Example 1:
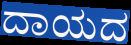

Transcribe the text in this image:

ದಾಯದ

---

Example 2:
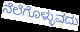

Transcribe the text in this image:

ನೆಲೆಗೊಳ್ಳುವದು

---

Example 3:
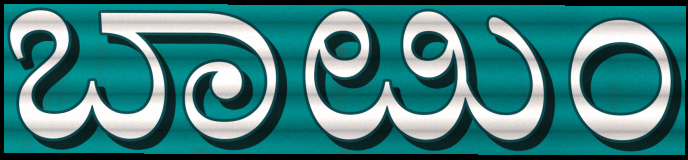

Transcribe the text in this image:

ಬಾೞುಂ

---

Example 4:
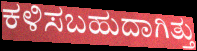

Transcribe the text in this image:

ಕಳಿಸಬಹುದಾಗಿತ್ತು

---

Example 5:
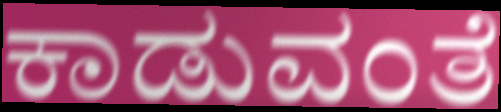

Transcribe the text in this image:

ಕಾಡುವಂತೆ